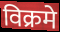
विक्रमे